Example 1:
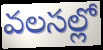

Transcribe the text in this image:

వలసల్లో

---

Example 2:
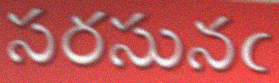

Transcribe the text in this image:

సరసునఁ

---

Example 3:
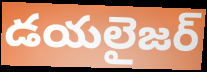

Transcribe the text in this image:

డయలైజర్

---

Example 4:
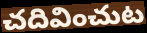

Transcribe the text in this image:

చదివించుట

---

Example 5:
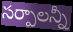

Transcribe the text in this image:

సర్పాలన్నీ